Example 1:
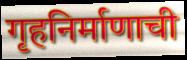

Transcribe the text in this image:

गृहनिर्माणाची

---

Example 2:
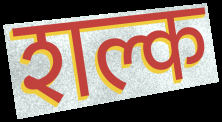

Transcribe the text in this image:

शल्क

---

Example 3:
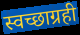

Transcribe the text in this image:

स्वच्छाग्रही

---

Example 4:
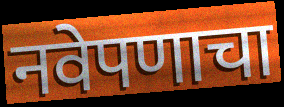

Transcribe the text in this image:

नवेपणाचा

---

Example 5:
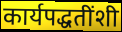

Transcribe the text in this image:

कार्यपद्धतींशी